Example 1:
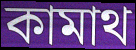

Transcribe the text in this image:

কামাথ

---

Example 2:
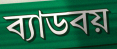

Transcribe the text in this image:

ব্যাডবয়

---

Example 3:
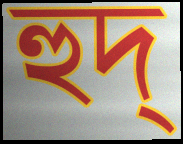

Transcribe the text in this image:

হুদ্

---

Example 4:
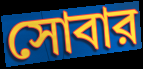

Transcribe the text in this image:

সোবার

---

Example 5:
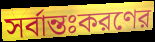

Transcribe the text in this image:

সর্বান্তঃকরণের